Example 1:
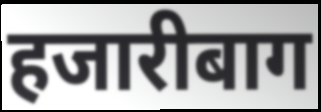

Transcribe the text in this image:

हजारीबाग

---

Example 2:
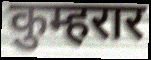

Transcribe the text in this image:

कुम्हरार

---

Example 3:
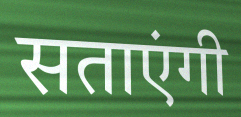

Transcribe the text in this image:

सताएंगी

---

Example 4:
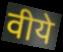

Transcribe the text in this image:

वीये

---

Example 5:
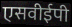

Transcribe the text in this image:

एसवीईपी